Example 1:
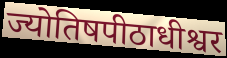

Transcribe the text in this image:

ज्योतिषपीठाधीश्वर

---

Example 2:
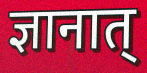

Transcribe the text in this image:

ज्ञानात्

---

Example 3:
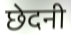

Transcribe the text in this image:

छेदनी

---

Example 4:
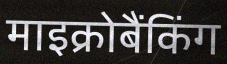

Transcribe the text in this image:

माइक्रोबैंकिंग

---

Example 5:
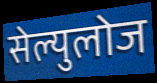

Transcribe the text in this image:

सेल्युलोज